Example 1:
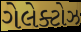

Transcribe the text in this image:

ગેલેક્ટોઝ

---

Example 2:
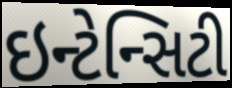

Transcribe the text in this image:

ઇન્ટેન્સિટી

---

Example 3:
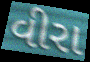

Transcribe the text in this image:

વીરા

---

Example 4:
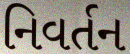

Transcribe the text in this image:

નિવર્તન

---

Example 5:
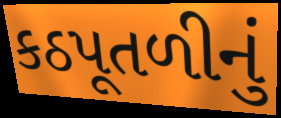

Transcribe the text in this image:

કઠપૂતળીનું